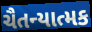
ચૈતન્યાત્મક